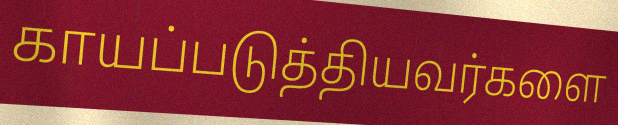
காயப்படுத்தியவர்களை